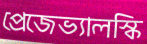
প্রেজেভ্যালস্কি